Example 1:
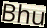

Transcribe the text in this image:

Bhu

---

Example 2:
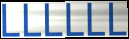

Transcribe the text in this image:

LLLLLL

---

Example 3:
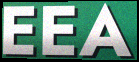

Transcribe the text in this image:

EEA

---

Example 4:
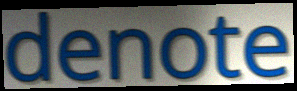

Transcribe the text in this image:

denote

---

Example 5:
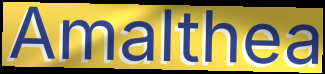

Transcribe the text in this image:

Amalthea